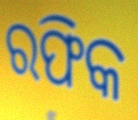
ରଫିକ